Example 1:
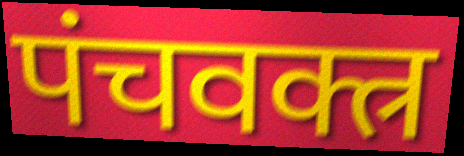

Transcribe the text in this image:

पंचवक्त्र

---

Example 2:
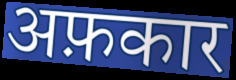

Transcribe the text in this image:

अफ़कार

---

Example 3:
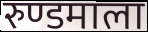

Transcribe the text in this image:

रुण्डमाला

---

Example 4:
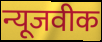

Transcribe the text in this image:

न्यूजवीक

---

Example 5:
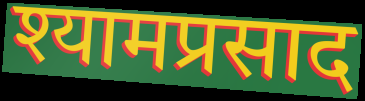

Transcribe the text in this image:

श्यामप्रसाद